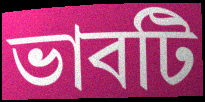
ভাবটি